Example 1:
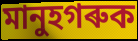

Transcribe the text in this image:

মানুহগৰুক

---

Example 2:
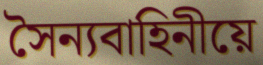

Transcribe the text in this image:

সৈন্যবাহিনীয়ে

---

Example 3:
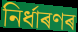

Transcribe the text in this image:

নিৰ্ধাৰণৰ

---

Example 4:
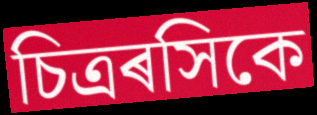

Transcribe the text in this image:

চিত্ৰৰসিকে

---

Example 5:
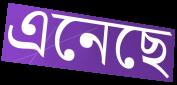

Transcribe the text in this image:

এনেছে